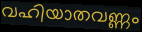
വഹിയാതവണ്ണം